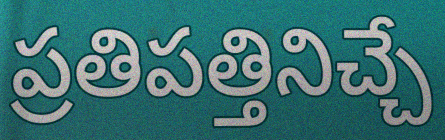
ప్రతిపత్తినిచ్చే